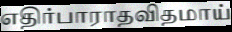
எதிர்பாராதவிதமாய்